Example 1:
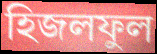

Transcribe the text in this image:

হিজলফুল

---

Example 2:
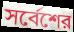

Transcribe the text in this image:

সর্বেশের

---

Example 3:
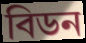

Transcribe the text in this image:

বিডন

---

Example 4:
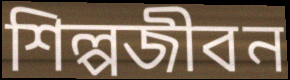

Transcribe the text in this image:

শিল্পজীবন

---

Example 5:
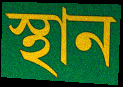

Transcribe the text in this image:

স্থান